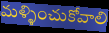
మళ్ళించుకోవాలి